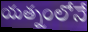
యత్నంలోనే